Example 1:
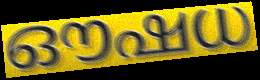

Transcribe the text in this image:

ഔഷധ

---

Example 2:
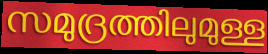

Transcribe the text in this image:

സമുദ്രത്തിലുമുള്ള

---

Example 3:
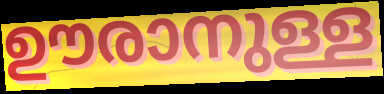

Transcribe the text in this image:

ഊരാനുള്ള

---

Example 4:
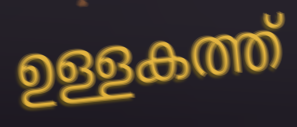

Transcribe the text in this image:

ഉള്ളകത്ത്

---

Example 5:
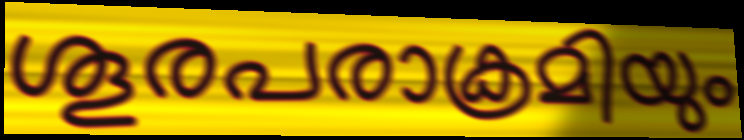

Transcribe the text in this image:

ശൂരപരാക്രമിയും